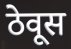
ठेवूस